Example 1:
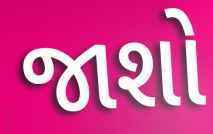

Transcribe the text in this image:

જાશો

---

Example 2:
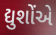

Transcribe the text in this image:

દ્યુશોંએ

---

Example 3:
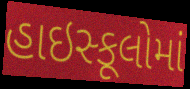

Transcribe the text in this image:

હાઇસ્કૂલોમાં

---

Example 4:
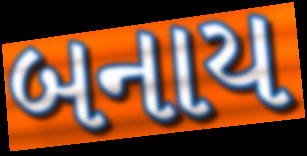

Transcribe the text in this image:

બનાય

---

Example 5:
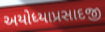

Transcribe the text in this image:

અયોધ્યાપ્રસાદજી